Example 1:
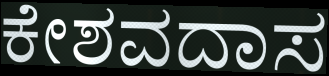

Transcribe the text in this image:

ಕೇಶವದಾಸ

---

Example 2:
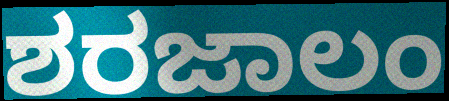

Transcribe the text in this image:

ಶರಜಾಲಂ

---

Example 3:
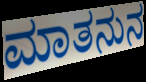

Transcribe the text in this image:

ಮಾತನುನ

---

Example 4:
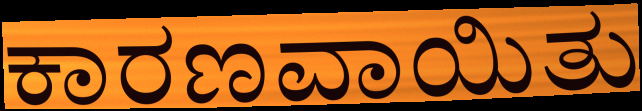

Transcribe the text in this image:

ಕಾರಣವಾಯಿತು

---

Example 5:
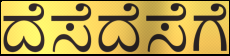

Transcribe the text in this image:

ದೆಸೆದೆಸೆಗೆ